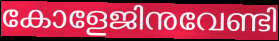
കോളേജിനുവേണ്ടി